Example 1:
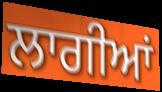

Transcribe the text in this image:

ਲਾਗੀਆਂ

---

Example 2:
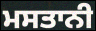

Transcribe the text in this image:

ਮਸਤਾਨੀ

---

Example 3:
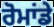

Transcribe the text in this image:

ਰੋਮਾਂਡੇ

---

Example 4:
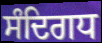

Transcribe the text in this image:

ਸੰਦਿਗਧ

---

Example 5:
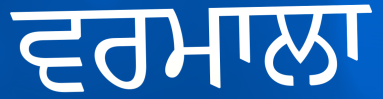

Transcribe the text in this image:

ਵਰਮਾਲਾ